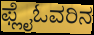
ಫ್ಲೈಓವರಿನ